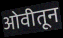
ओवीतून